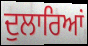
ਦੁਲਾਰਿਆਂ